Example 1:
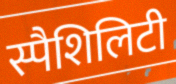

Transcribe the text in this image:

स्पैशिलिटी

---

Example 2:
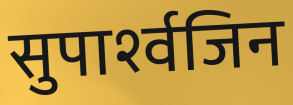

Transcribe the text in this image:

सुपार्श्वजिन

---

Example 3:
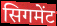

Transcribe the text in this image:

सिगमेंट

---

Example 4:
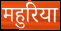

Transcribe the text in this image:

महुरिया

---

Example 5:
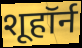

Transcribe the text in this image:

शूहॉर्न